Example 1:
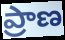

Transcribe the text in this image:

ప్రాణ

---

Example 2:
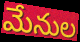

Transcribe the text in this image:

మేనుల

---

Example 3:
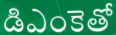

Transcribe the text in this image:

డిఎంకెతో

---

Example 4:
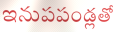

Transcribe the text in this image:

ఇనుపపండ్లతో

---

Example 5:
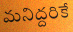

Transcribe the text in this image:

మనిద్దరికే